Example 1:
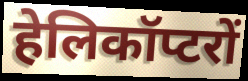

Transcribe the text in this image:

हेलिकॉप्टरों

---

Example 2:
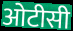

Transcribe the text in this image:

ओटीसी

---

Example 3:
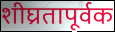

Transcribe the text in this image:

शीघ्रतापूर्वक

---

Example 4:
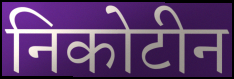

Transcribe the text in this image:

निकोटीन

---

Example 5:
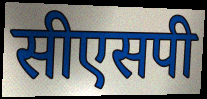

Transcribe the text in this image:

सीएसपी